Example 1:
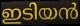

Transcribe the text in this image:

ഇടിയൻ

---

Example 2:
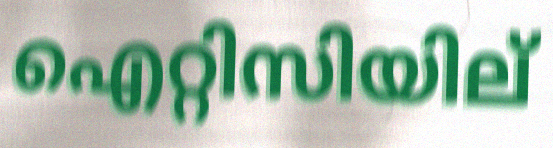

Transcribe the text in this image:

ഐറ്റിസിയില്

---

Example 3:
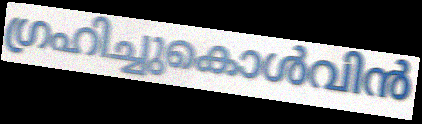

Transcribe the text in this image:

ഗ്രഹിച്ചുകൊൾവിൻ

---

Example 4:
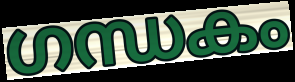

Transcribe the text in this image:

ഗന്ധകം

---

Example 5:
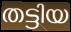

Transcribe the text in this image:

തട്ടിയ